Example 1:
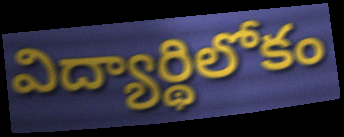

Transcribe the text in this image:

విద్యార్థిలోకం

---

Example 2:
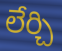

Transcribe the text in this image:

లేర్చి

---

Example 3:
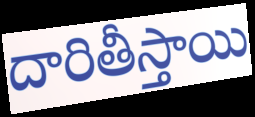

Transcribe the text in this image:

దారితీస్తాయి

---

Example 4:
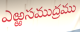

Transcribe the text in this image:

ఎఱ్ఱసముద్రము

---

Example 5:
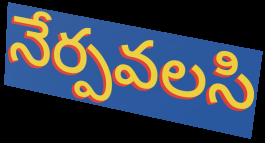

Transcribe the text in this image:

నేర్పవలసి